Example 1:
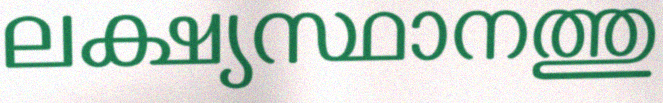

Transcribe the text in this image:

ലക്ഷ്യസ്ഥാനത്തു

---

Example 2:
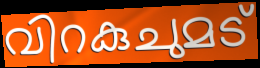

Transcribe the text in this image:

വിറകുചുമട്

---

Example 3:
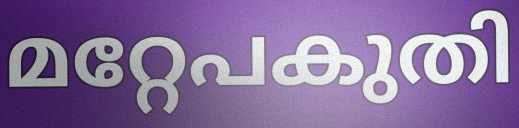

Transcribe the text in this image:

മറ്റേപകുതി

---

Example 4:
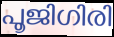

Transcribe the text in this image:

പൂജിഗിരി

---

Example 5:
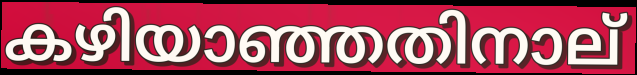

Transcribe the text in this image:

കഴിയാഞ്ഞതിനാല്